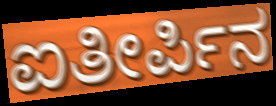
ಐತೀರ್ಪಿನ